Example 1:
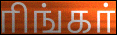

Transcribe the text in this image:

ரிங்கர்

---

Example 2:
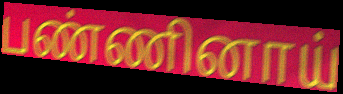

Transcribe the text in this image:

பண்ணினாய்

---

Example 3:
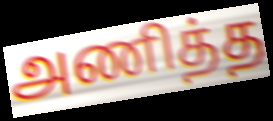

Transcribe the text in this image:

அணித்த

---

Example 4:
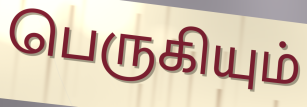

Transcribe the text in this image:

பெருகியும்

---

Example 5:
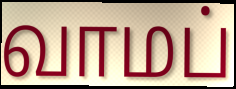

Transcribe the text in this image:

வாமப்